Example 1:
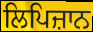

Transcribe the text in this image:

ਲਿਪਿਜ਼ਾਨ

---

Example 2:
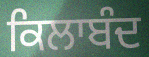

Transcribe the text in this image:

ਕਿਲਾਬੰਦ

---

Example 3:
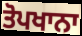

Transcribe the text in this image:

ਤੋਪਖਾਨਾ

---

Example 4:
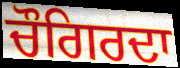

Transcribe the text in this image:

ਚੌਗਿਰਦਾ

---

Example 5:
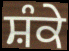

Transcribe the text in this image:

ਸ਼ੰਕੇ